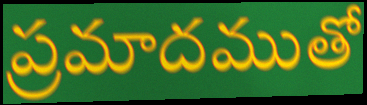
ప్రమాదముతో